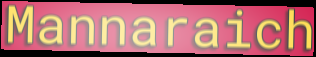
Mannaraich